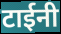
टाईनी